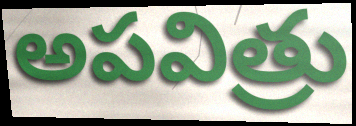
అపవిత్రు